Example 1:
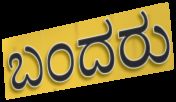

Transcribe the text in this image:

ಬಂದರು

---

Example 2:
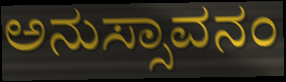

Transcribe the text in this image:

ಅನುಸ್ಸಾವನಂ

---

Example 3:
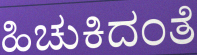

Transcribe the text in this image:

ಹಿಚುಕಿದಂತೆ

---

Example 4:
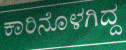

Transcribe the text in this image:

ಕಾರಿನೊಳಗಿದ್ದ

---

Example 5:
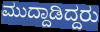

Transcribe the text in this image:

ಮುದ್ದಾಡಿದ್ದರು